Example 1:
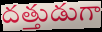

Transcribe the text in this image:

దత్తుడుగా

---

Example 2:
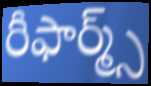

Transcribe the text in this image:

రీఫార్మ్స్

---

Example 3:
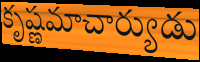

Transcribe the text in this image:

కృష్ణమాచార్యుడు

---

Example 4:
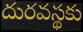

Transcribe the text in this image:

దురవస్థకు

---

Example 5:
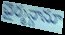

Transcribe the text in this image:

ఛైర్మన్గానూ